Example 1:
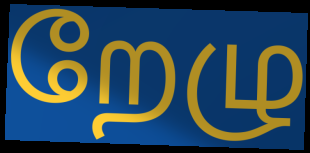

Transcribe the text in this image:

றேழு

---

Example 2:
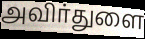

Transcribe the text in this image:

அவிர்துளை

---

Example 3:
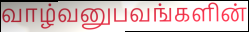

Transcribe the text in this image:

வாழ்வனுபவங்களின்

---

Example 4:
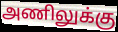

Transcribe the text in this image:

அணிலுக்கு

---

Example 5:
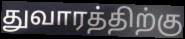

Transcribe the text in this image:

துவாரத்திற்கு